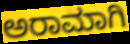
ಅರಾಮಾಗಿ